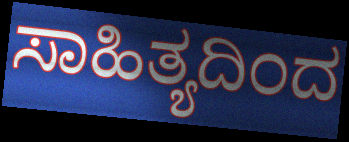
ಸಾಹಿತ್ಯದಿಂದ